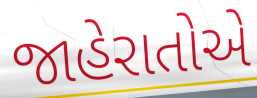
જાહેરાતોએ